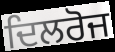
ਦਿਲਰੋਜ